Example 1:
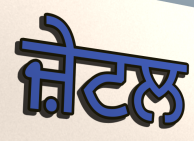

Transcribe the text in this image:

ਜ਼ੇਟਲ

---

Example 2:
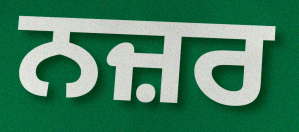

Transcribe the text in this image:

ਨਜ਼ਰ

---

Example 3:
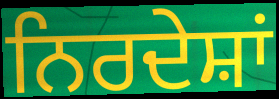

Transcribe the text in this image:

ਨਿਰਦੇਸ਼ਾਂ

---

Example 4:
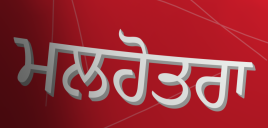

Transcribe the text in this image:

ਮਲਹੋਤਰਾ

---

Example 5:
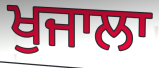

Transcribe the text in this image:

ਖੁਜਾਲਾ